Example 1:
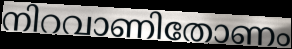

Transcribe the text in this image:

നിറവാണിതോണം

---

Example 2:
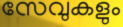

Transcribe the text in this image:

സേവുകളും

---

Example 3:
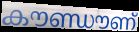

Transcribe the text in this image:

കൗണ്ഡൗണ്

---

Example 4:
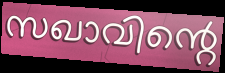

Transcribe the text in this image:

സഖാവിന്റെ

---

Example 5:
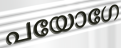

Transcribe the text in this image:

പയോഗേ